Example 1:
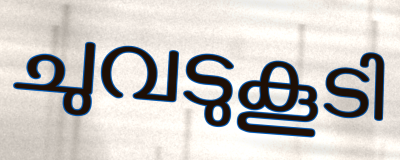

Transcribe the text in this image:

ചുവടുകൂടി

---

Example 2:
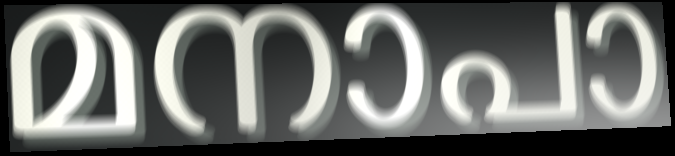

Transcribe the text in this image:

മനാപാ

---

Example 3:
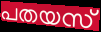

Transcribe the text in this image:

പതയസ്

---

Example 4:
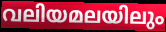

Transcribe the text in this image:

വലിയമലയിലും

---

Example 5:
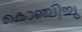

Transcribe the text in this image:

കൊഞ്ചിച്ചു